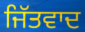
ਜਿੱਤਵਾਦ